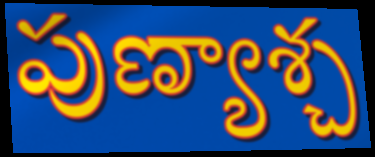
పుణ్యాశ్చ